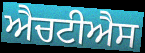
ਐਚਟੀਐਸ